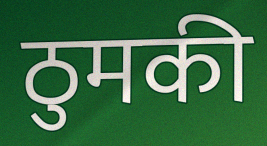
ठुमकी